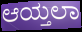
ಆಯ್ತಲಾ